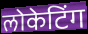
लोकेटिंग